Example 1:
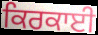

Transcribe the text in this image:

ਕਿਰਕਾਈ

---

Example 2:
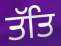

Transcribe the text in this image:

ਤੱਤਿ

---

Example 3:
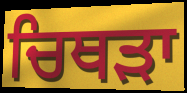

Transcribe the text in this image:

ਚਿਥੜਾ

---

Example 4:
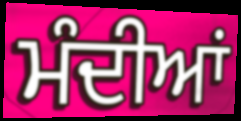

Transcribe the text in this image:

ਮੰਦੀਆਂ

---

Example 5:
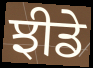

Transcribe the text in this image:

ਝੀਡੇ